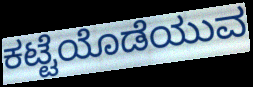
ಕಟ್ಟೆಯೊಡೆಯುವ